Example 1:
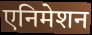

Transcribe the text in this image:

एनिमेशन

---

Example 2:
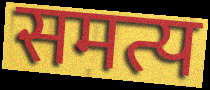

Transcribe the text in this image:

समत्य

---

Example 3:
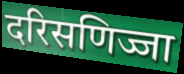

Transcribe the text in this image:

दरिसणिज्जा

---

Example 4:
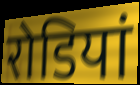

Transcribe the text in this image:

रोडियां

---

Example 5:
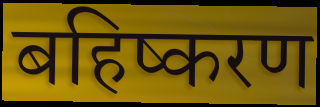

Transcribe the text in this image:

बहिष्करण